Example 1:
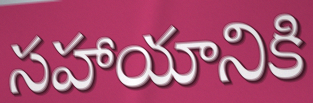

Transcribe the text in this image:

సహాయానికి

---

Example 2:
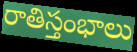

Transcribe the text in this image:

రాతిస్తంభాలు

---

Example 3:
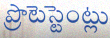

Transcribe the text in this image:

ప్రొటెస్టెంట్లు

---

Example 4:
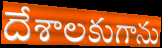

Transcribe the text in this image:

దేశాలకుగాను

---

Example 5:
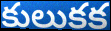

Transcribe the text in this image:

కులుకక